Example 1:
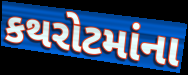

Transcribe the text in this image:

કથરોટમાંના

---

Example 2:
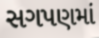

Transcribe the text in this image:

સગપણમાં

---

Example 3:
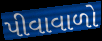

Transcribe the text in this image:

પીવાવાળો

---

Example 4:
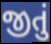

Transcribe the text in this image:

જીતું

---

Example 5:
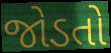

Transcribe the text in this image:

જોડતો